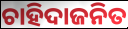
ଚାହିଦାଜନିତ